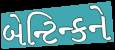
બેન્ટિન્કને